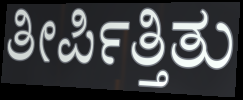
ತೀರ್ಪಿತ್ತಿತು